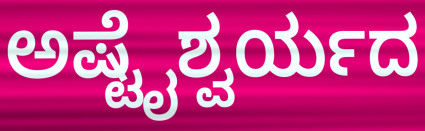
ಅಷ್ಟೈಶ್ವರ್ಯದ